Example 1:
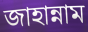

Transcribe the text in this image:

জাহান্নাম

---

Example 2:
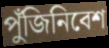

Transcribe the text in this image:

পুঁজিনিবেশ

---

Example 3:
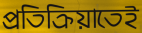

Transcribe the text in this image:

প্রতিক্রিয়াতেই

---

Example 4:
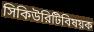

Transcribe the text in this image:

সিকিউরিটিবিষয়ক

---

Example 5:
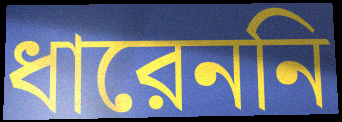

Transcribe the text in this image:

ধারেননি